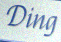
Ding